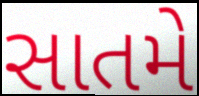
સાતમે